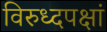
विरुध्दपक्षां